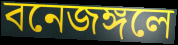
বনেজঙ্গলে